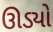
ઊડ્યો